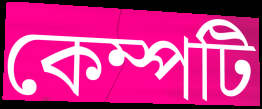
কেম্পটি